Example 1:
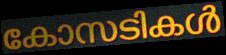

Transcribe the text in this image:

കോസടികൾ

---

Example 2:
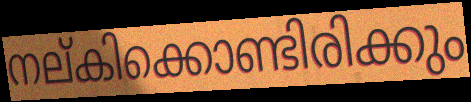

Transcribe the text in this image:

നല്കിക്കൊണ്ടിരിക്കും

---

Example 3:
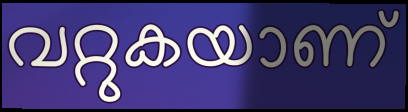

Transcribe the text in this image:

വറ്റുകയാണ്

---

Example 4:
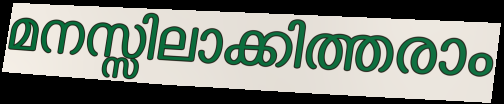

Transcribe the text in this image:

മനസ്സിലാക്കിത്തരാം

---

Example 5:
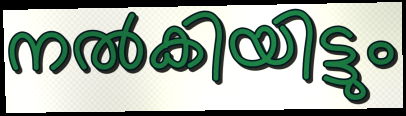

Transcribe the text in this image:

നൽകിയിട്ടും